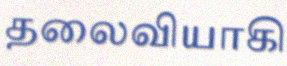
தலைவியாகி